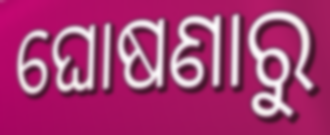
ଘୋଷଣାରୁ